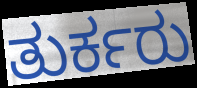
ತುರ್ಕರು